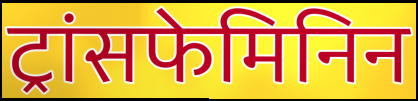
ट्रांसफेमिनिन